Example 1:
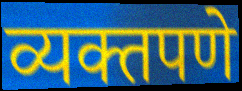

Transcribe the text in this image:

व्यक्तपणे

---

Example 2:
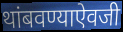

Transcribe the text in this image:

थांबवण्याऐवजी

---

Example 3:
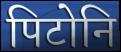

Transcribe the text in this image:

पिटोनि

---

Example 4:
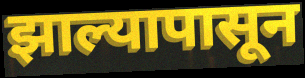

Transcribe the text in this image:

झाल्यापासून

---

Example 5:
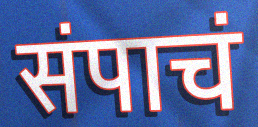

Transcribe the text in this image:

संपाचं